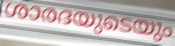
ശാരദയുടെയും